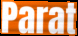
Parat